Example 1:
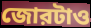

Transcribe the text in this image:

জোরটাও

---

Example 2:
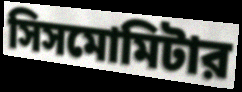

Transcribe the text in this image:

সিসমোমিটার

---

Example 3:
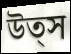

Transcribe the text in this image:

উত্স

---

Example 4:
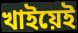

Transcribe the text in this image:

খাইয়েই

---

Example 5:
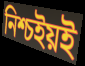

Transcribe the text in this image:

নিশ্চইয়ই